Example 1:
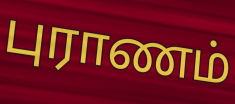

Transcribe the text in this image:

புராணம்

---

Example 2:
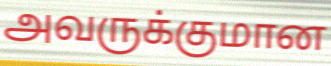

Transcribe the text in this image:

அவருக்குமான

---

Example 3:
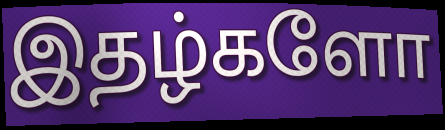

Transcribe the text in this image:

இதழ்களோ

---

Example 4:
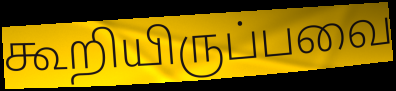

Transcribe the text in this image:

கூறியிருப்பவை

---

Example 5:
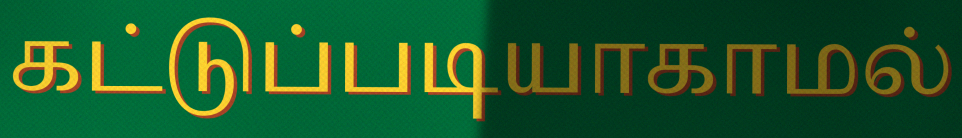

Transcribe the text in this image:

கட்டுப்படியாகாமல்